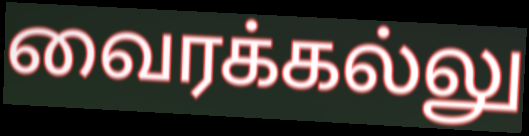
வைரக்கல்லு